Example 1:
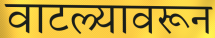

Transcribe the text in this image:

वाटल्यावरून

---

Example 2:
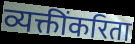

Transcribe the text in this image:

व्यक्तींकरिता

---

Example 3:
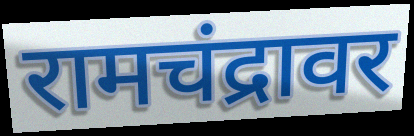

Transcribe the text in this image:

रामचंद्रावर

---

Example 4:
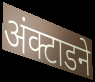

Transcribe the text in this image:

अंक्टाडने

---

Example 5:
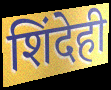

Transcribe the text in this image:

शिंदेही